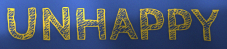
UNHAPPY